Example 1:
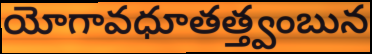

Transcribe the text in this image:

యోగావధూతత్త్వంబున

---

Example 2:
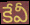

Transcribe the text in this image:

కేవీ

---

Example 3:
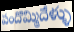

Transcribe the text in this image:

పందొమ్మిదేళ్ళు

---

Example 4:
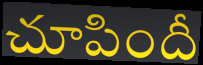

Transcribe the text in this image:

చూపిందీ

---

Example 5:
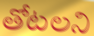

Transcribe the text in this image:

తోటలని